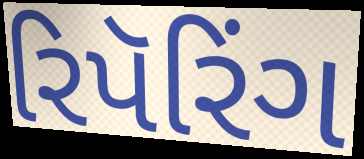
રિપૅરિંગ